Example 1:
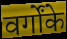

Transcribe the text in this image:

वर्गोंके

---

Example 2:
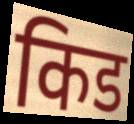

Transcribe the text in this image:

किड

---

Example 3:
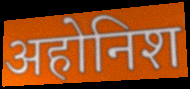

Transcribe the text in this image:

अहोनिश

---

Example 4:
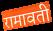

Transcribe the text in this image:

रामावती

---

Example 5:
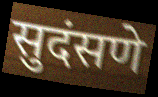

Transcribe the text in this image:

सुदंसणे